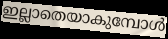
ഇല്ലാതെയാകുമ്പോൾ